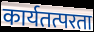
कार्यतत्परता